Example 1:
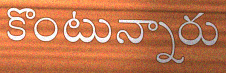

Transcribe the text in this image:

కొంటున్నారు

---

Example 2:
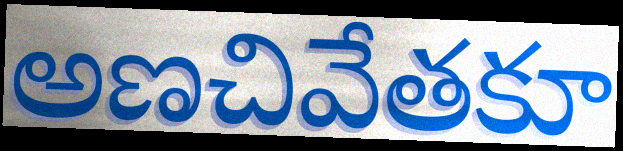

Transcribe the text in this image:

అణచివేతకూ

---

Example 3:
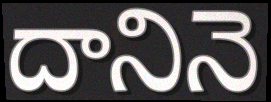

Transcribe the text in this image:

దానినె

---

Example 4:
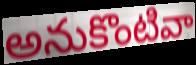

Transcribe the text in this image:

అనుకొంటివా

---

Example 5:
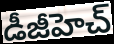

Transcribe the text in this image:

డీజీహెచ్